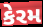
કેરમ